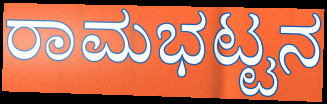
ರಾಮಭಟ್ಟನ